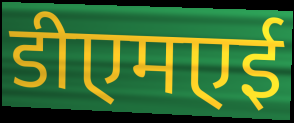
डीएमएई